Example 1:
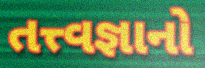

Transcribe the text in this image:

તત્ત્વજ્ઞાનો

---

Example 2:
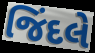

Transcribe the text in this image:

જિંદલે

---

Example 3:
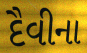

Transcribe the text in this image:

દૈવીના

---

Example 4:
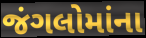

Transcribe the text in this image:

જંગલોમાંના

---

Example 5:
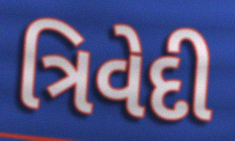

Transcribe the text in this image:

ત્રિવેદી